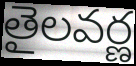
తైలవర్ణ